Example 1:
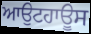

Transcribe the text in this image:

ਆਉਟਹਾਊਸ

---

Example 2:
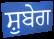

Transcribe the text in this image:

ਸ਼ੁਬੇਗ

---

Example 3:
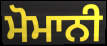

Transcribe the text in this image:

ਮੋਮਾਨੀ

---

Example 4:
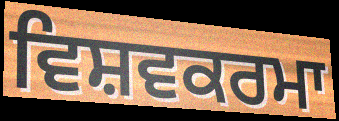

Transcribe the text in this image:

ਵਿਸ਼ਵਕਰਮਾ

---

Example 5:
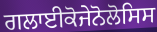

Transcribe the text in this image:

ਗਲਾਈਕੋਜੇਨੋਲੋਸਿਸ